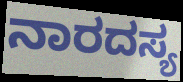
ನಾರದಸ್ಯ